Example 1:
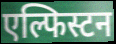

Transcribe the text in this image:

एल्फिस्टन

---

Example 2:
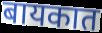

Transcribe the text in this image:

बायकात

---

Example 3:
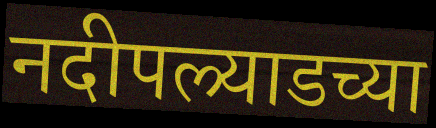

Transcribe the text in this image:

नदीपल्याडच्या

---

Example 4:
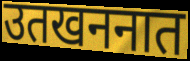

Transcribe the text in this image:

उतखननात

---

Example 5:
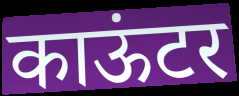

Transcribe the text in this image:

काऊंटर